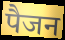
पैजन